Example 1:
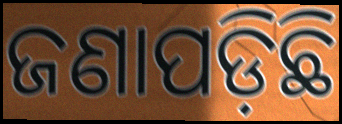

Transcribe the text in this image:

ଜଣାପଡ଼ିଛି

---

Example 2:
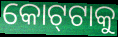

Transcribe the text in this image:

କୋଟ୍‌ଟାକୁ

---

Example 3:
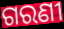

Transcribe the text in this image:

ଗରଣୀ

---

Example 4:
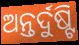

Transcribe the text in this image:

ଅନ୍ତର୍ଦୁଷ୍ଟି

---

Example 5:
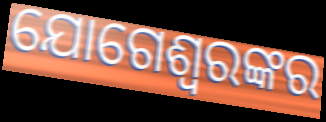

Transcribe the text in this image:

ଯୋଗେଶ୍ଵରଙ୍କର